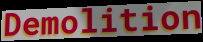
Demolition